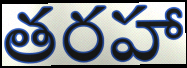
తరహా